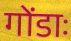
गोंडाः